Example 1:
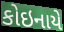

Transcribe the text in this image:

કોઇનાયે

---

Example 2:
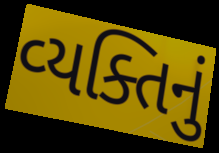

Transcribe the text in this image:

વ્‍યક્તિનું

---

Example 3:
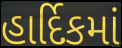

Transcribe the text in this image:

હાર્દિકમાં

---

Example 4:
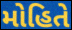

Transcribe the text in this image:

મોહિતે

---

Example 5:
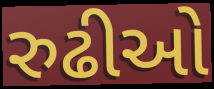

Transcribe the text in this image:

રુઢીઓ